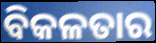
ବିକଳତାର